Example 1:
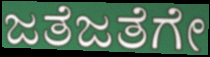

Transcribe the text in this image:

ಜತೆಜತೆಗೇ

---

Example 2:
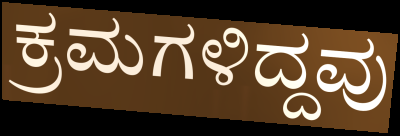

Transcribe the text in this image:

ಕ್ರಮಗಳಿದ್ದವು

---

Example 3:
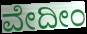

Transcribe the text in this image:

ವೇದೀಂ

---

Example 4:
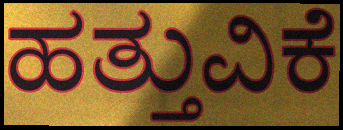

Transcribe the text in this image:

ಹತ್ತುವಿಕೆ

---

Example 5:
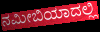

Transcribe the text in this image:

ನಮೀಬಿಯಾದಲ್ಲಿ